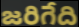
జరిగేది